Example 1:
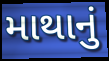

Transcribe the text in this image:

માથાનું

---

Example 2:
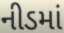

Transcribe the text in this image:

નીડમાં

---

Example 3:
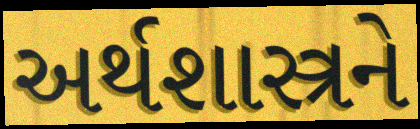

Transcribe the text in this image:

અર્થશાસ્ત્રને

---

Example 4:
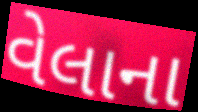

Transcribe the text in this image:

વેલાના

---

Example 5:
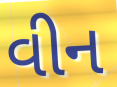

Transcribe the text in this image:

વીન